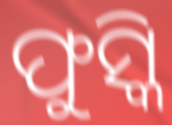
ଫୁସ୍କି